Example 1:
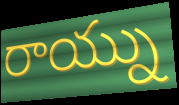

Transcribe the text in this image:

రాయ్ను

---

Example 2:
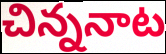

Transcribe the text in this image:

చిన్ననాట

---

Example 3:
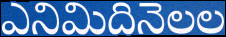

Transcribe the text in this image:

ఎనిమిదినెలల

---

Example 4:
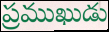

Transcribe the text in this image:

ప్రముఖుడు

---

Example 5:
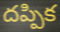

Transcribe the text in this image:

దప్పిక